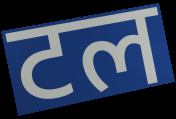
टल